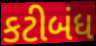
કટીબંધ